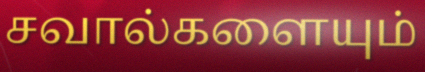
சவால்களையும்